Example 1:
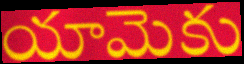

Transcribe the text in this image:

యామెకు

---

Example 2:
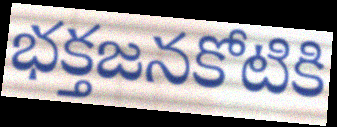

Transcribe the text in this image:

భక్తజనకోటికి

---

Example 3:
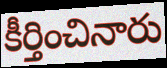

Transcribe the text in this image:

కీర్తించినారు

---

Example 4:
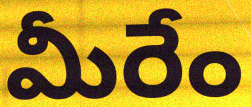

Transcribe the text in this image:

మీరేం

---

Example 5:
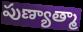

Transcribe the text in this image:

పుణ్యాత్మా